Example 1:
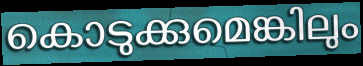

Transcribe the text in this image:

കൊടുക്കുമെങ്കിലും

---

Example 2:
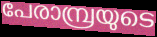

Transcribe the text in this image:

പേരാമ്പ്രയുടെ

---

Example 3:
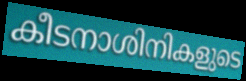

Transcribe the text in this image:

കീടനാശിനികളുടെ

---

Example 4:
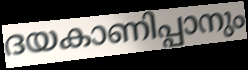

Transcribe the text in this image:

ദയകാണിപ്പാനും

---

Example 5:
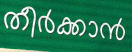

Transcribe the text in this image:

തീർക്കാൻ